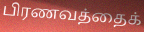
பிரணவத்தைக்